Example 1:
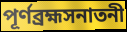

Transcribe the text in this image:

পূর্ণব্রহ্মসনাতনী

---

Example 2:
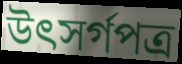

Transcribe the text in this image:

উৎসর্গপত্র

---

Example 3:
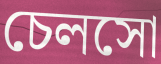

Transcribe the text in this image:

চেলসো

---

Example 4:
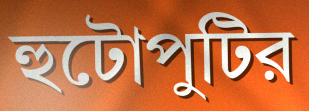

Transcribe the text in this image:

হুটোপুটির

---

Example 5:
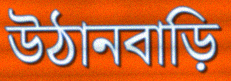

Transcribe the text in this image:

উঠানবাড়ি